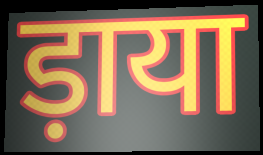
ड़ाया